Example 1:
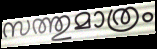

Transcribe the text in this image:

സത്തുമാത്രം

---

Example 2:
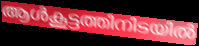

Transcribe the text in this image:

ആൾകൂട്ടത്തിനിടയിൽ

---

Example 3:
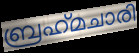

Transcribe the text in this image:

ബ്രഹ്‌മചാരി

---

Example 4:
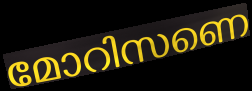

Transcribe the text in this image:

മോറിസണെ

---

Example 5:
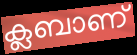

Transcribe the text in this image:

ക്ലബാണ്